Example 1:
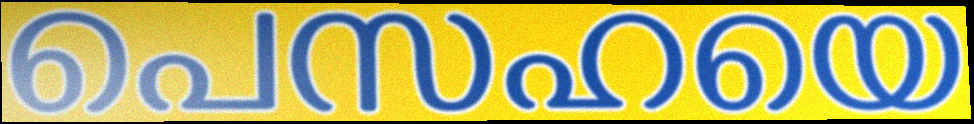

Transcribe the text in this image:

പെസഹയെ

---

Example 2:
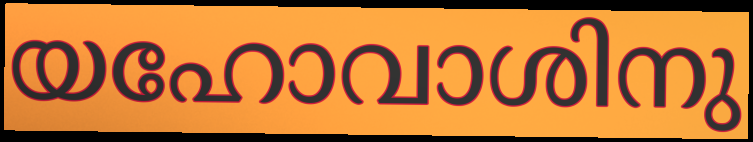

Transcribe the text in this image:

യഹോവാശിനു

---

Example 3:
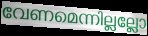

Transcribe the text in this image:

വേണമെന്നില്ലല്ലോ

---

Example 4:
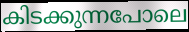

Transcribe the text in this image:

കിടക്കുന്നപോലെ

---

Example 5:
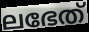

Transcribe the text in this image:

ലഭേത്